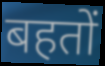
बहतों